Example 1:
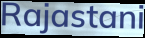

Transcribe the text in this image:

Rajastani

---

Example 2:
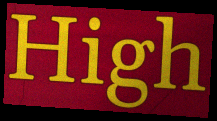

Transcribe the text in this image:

High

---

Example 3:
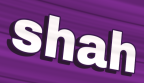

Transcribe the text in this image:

shah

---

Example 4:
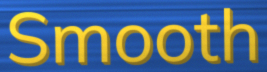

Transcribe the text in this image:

Smooth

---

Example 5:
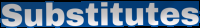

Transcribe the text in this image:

Substitutes